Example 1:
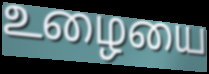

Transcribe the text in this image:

உழையை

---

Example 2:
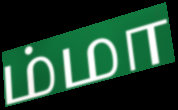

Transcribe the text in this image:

ம்மா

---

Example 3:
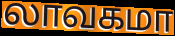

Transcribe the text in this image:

லாவகமா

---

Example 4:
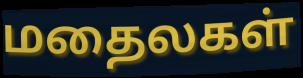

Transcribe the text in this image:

மதைலகள்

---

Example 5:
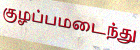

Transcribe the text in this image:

குழப்பமடைந்து